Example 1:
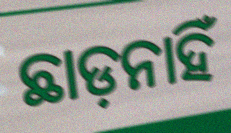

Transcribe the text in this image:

ଛାଡ଼ନାହିଁ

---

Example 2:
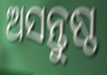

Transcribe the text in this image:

ଅସନ୍ତୁଷ୍ଠ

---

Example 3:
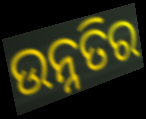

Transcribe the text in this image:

ଉନ୍ନତିର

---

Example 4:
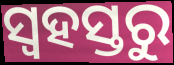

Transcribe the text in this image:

ସ୍ୱହସ୍ତରୁ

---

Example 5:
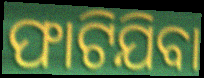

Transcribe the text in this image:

ଫାଟିଯିବା